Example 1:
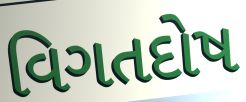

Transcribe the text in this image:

વિગતદોષ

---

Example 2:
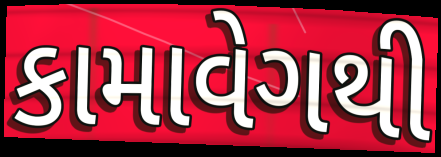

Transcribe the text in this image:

કામાવેગથી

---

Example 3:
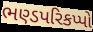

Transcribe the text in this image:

ભણ્ડપરિકપ્પો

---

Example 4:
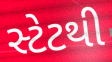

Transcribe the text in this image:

સ્ટેટથી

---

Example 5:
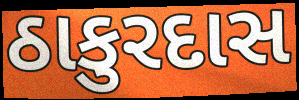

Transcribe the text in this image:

ઠાકુરદાસ